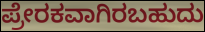
ಪ್ರೇರಕವಾಗಿರಬಹುದು